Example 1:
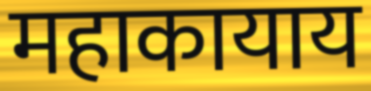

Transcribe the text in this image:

महाकायाय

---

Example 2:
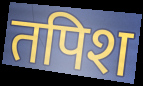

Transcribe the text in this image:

तपिश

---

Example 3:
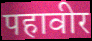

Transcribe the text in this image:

पहावीर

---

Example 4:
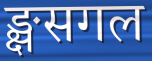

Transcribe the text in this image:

ङ्क्षसगल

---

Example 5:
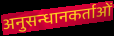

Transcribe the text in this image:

अनुसन्धानकर्ताओं